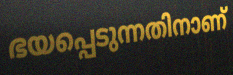
ഭയപ്പെടുന്നതിനാണ്